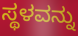
ಸ್ಥಳವನ್ನು